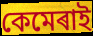
কেমেৰাই